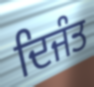
ਦਿਜੰਤ